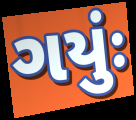
ગયુંઃ